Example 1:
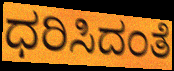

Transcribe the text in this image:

ಧರಿಸಿದಂತೆ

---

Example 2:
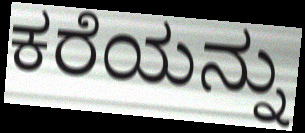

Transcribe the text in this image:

ಕರೆಯನ್ನು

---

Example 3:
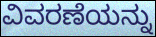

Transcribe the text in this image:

ವಿವರಣೆಯನ್ನು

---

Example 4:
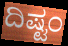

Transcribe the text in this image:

ದಿಷ್ಟಂ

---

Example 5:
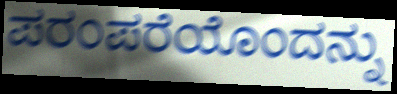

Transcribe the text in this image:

ಪರಂಪರೆಯೊಂದನ್ನು